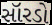
સૉરડો